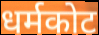
धर्मकोट